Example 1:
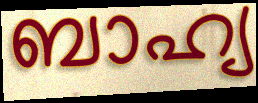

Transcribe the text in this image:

ബാഹ്യ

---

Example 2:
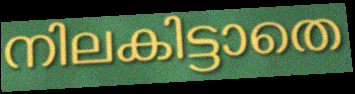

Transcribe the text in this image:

നിലകിട്ടാതെ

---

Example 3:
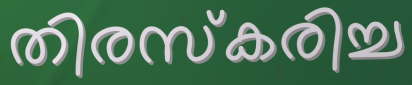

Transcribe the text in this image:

തിരസ്കരിച്ച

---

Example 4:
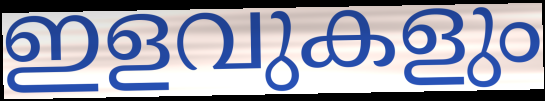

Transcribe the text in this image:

ഇളവുകളും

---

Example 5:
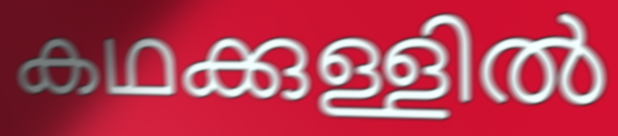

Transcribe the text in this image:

കഥക്കുള്ളിൽ